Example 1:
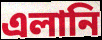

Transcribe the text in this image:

এলানি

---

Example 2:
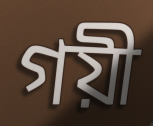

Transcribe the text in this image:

গয়ী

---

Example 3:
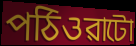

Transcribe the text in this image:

পঠিওৱাটো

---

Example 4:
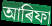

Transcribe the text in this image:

আৰিফা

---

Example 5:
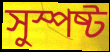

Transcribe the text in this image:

সুস্পষ্ট